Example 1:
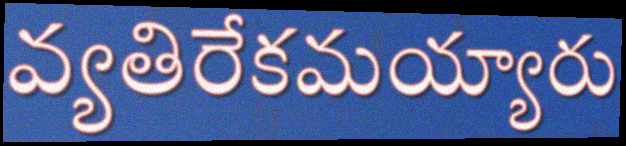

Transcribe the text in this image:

వ్యతిరేకమయ్యారు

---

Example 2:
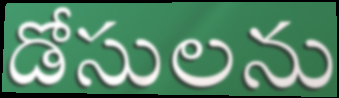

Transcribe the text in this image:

డోసులను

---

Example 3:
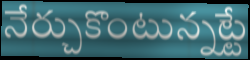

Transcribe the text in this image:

నేర్చుకొంటున్నట్టే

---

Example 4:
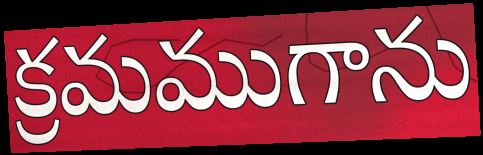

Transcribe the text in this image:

క్రమముగాను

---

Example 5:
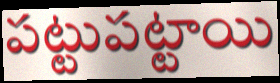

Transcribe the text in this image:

పట్టుపట్టాయి